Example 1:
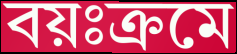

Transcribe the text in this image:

বয়ঃক্রমে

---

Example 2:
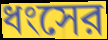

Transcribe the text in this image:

ধংসের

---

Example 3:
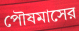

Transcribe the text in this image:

পৌষমাসের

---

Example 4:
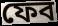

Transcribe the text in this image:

ফেব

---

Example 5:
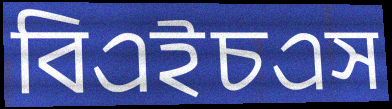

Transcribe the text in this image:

বিএইচএস